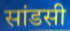
सांडसी